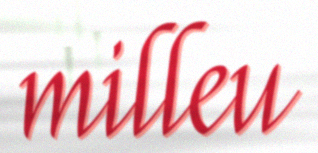
milleu